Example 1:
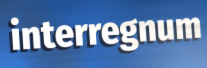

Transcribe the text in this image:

interregnum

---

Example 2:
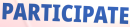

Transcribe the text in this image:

PARTICIPATE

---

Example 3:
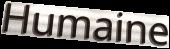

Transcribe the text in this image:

Humaine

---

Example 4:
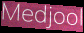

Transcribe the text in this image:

Medjool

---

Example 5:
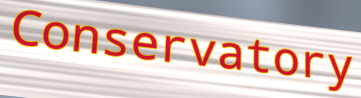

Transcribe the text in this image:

Conservatory